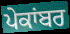
ਪੇਕਾਂਬਰ